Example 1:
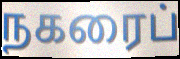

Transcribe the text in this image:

நகரைப்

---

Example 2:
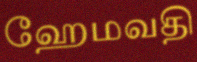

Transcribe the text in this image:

ஹேமவதி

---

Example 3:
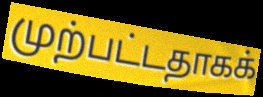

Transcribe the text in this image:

முற்பட்டதாகக்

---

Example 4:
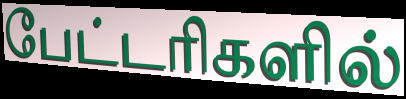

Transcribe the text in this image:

பேட்டரிகளில்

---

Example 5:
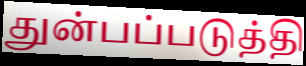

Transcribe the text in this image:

துன்பப்படுத்தி